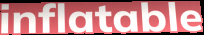
inflatable